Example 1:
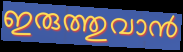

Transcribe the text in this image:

ഇരുത്തുവാൻ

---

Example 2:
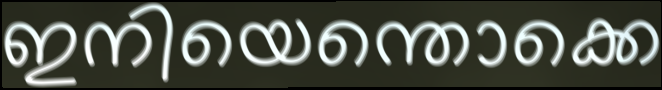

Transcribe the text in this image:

ഇനിയെന്തൊക്കെ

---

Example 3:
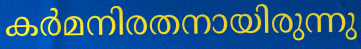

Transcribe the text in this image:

കർമനിരതനായിരുന്നു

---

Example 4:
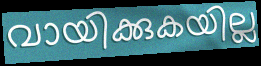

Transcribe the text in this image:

വായിക്കുകയില്ല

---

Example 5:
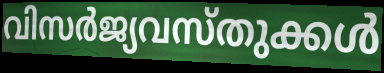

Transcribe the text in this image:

വിസർജ്യവസ്തുക്കൾ